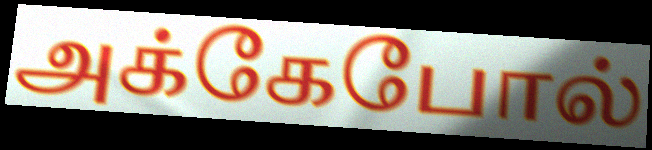
அக்கேபோல்